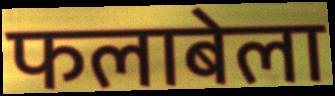
फलाबेला